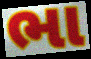
ભા